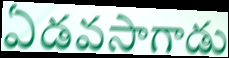
ఏడవసాగాడు